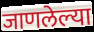
जाणलेल्या